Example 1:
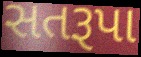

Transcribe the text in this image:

સતરૂપા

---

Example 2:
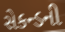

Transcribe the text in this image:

સેકન્ડની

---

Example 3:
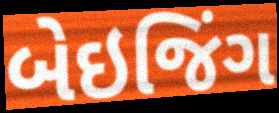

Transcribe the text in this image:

બેઇજિંગ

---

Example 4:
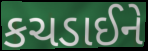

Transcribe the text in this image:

કચડાઈને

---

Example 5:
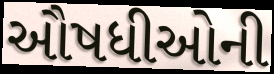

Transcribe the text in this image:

ઔષધીઓની